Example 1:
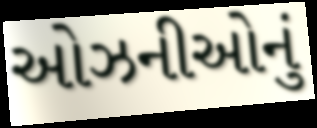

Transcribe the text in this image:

ઓઝનીઓનું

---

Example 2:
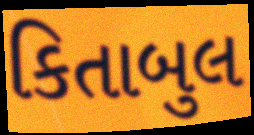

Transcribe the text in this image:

કિતાબુલ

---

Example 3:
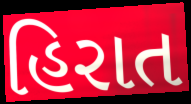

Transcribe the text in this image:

હિરાત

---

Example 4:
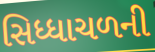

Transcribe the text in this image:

સિધ્ધાચળની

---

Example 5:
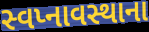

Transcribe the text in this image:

સ્વપ્નાવસ્થાના